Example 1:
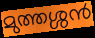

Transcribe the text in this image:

മുത്തശ്ശൻ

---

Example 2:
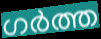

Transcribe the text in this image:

ഗർത്ത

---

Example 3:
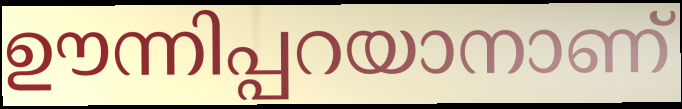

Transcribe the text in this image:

ഊന്നിപ്പറയാനാണ്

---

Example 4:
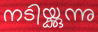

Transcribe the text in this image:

നടിയ്ക്കുന്നു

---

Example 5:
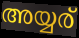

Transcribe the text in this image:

അയ്യര്